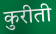
कुरीती